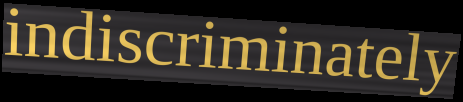
indiscriminately